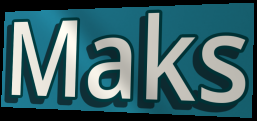
Maks